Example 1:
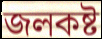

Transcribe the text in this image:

জলকষ্ট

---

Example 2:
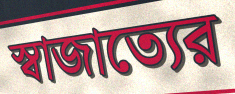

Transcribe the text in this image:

স্বাজাত্যের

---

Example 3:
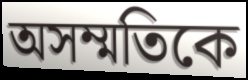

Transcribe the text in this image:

অসম্মতিকে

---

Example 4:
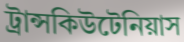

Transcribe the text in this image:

ট্রান্সকিউটেনিয়াস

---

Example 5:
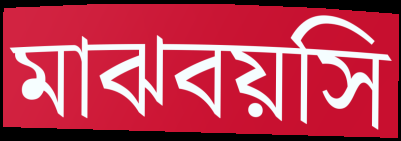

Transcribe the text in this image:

মাঝবয়সি